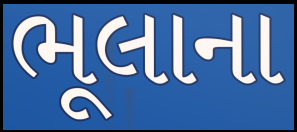
ભૂલાના